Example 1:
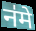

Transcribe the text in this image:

न॑मे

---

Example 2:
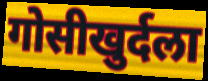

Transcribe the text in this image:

गोसीखुर्दला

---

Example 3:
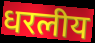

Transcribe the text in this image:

धरलीय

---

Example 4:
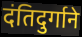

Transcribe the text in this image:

दंतिदुर्गाने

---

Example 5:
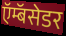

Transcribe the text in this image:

ऍम्बॅसेडर